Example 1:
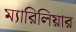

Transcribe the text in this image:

ম্যারিলিয়ার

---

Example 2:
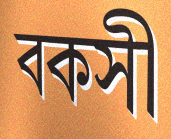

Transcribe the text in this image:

বকসী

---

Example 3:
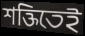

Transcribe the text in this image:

শক্তিতেই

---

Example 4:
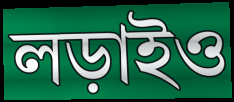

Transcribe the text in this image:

লড়াইও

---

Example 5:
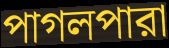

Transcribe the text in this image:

পাগলপারা